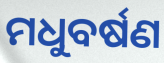
ମଧୁବର୍ଷଣ